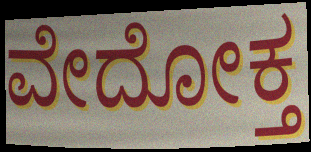
ವೇದೋಕ್ತ